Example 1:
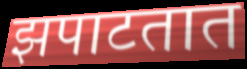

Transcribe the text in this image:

झपाटतात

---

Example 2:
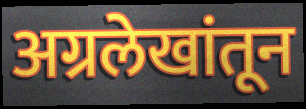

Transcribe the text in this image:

अग्रलेखांतून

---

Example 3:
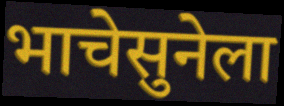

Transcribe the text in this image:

भाचेसुनेला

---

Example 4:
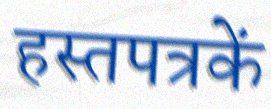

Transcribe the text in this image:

हस्तपत्रकें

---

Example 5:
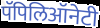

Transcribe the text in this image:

पॅपिलिऑनेटी